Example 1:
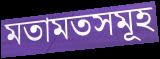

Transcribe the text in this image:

মতামতসমূহ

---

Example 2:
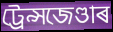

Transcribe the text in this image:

ট্ৰেন্সজেণ্ডাৰ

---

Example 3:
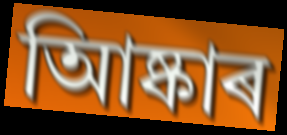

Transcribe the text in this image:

আিষ্কাৰ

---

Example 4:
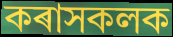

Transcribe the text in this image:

কৰাসকলক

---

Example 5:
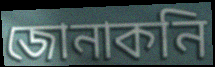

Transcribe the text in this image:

জোনাকনি